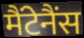
मैंटेनैंस